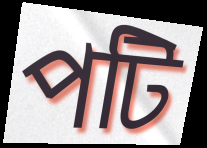
পটি